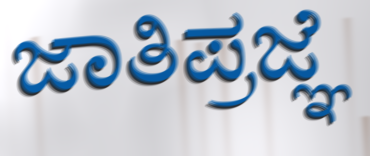
ಜಾತಿಪ್ರಜ್ಞೆ